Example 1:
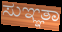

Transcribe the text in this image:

ಸುಞ್ಞತಾ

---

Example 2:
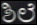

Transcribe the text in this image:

ಶಿಲೆ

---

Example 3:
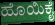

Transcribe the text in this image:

ಹೊಯಿಕೈ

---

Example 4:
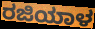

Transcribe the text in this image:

ರಜಿಯಾಳ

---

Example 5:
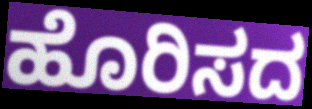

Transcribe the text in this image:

ಹೊರಿಸದ